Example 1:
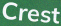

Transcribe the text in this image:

Crest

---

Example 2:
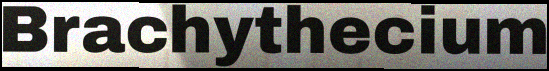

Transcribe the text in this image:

Brachythecium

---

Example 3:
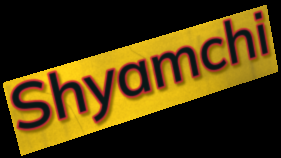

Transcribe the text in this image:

Shyamchi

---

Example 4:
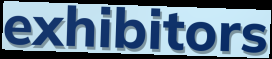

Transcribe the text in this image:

exhibitors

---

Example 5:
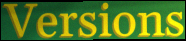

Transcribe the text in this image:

Versions